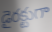
డైరక్టుగా